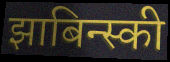
झाबिन्स्की